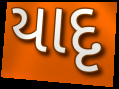
યાદૃ